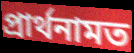
প্রার্থনামত